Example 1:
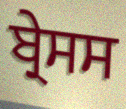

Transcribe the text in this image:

ਬ੍ਰੇਸਸ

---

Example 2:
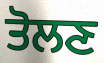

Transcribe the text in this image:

ਤੋਲਣ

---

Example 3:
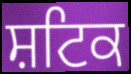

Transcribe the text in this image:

ਸ਼ਟਿਕ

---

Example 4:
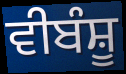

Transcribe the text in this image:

ਵੀਬੰਸ਼ੂ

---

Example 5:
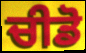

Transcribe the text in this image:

ਚੀਡੋ